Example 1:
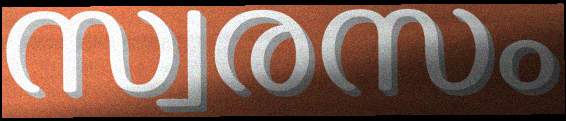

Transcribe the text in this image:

സ്വരസം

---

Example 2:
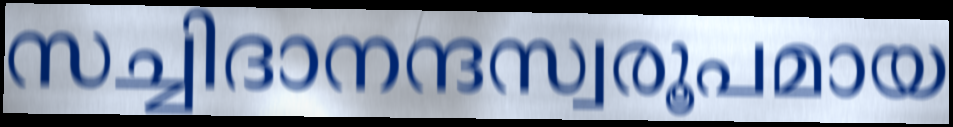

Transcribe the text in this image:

സച്ചിദാനന്ദസ്വരൂപമായ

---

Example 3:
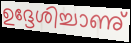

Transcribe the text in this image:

ഉദ്ദേശിച്ചാണു്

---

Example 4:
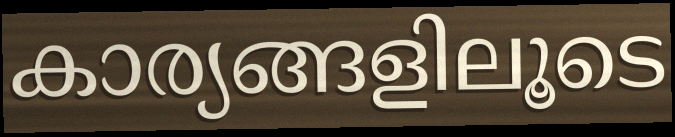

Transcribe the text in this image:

കാര്യങ്ങളിലൂടെ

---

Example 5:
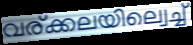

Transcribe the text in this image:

വര്ക്കലയില്വെച്ച്